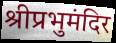
श्रीप्रभुमंदिर